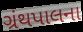
ગ્રંથપાલના